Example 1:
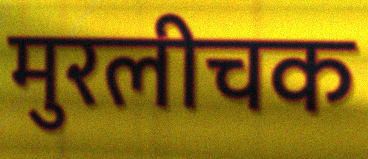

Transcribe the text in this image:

मुरलीचक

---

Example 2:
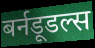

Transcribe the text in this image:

बर्नडूडल्स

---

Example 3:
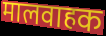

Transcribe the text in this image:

मालवाहक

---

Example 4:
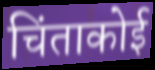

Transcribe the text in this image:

चिंताकोई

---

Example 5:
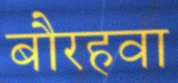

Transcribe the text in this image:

बौरहवा